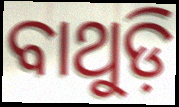
ବାଥୁଡ଼ି